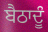
ਬੈਠਾਦੂੰ